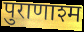
पुराणाश्म